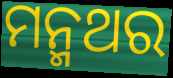
ମନ୍ମଥର